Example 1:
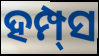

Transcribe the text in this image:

ହମ୍ପ୍‌ସ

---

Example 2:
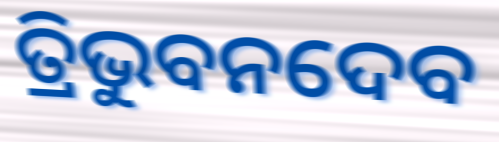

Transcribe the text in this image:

ତ୍ରିଭୁବନଦେବ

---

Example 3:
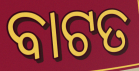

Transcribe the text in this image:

ବାଟତ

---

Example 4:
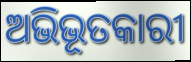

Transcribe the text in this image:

ଅଭିଭୂତକାରୀ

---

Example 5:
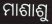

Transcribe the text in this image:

ମାଶାଶୁ